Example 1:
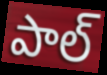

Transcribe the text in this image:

పాల్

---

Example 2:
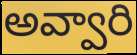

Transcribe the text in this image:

అవ్వారి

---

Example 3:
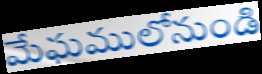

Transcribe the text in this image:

మేఘములోనుండి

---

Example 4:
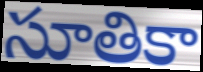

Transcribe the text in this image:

సూతికా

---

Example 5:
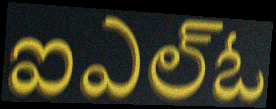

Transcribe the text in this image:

ఐఎల్ఓ